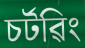
চৰ্টৱিং